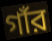
গাঁর